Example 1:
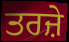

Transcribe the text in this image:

ਤਰਜ਼ੇ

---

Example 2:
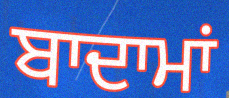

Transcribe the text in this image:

ਬਾਦਾਮਾਂ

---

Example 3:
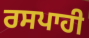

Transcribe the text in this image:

ਰਸਪਾਹੀ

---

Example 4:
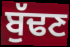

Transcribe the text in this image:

ਬੁੱਢਣ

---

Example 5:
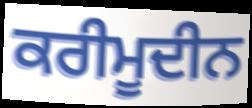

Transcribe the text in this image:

ਕਰੀਮੂਦੀਨ